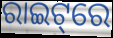
ରାଇଟ୍‌ରେ